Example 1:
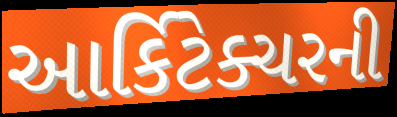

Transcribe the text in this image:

આર્કિટેક્ચરની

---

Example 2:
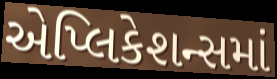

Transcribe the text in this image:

એપ્લિકેશન્સમાં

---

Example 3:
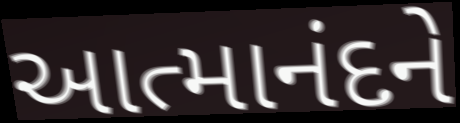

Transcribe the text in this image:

આત્માનંદને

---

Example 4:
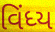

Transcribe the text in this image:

વિંધ્ય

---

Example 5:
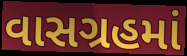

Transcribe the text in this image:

વાસગ્રહમાં